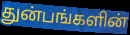
துன்பங்களின்